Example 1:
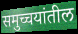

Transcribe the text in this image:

समुच्चयांतील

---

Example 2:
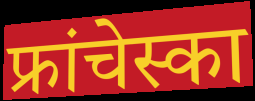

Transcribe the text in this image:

फ्रांचेस्का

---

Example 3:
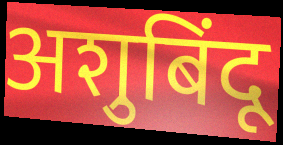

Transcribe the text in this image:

अश्रुबिंदू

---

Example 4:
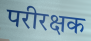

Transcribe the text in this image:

परीरक्षक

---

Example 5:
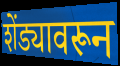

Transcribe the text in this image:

शेंड्यावरून